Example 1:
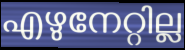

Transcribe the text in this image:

എഴുനേറ്റില്ല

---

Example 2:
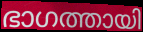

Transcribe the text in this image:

ഭാഗത്തായി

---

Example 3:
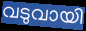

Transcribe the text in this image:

വടുവായി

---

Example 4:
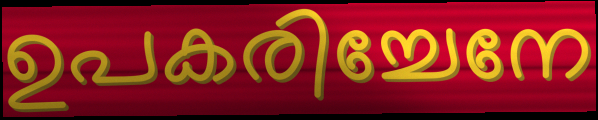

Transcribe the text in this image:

ഉപകരിച്ചേനേ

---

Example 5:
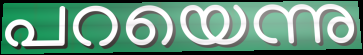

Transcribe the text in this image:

പറയെന്നു